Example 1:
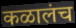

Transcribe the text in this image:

कळालंच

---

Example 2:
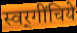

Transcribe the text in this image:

स्वर्गींचिये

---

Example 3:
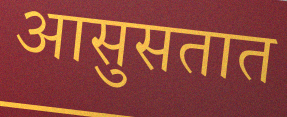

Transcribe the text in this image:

आसुसतात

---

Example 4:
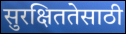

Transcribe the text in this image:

सुरक्षिततेसाठी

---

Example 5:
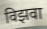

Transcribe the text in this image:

विझवा